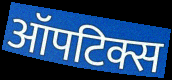
ऑपटिक्स